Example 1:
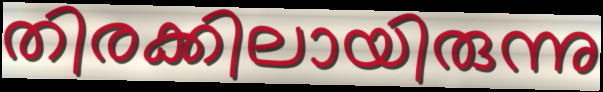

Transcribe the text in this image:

തിരക്കിലായിരുന്നു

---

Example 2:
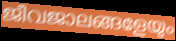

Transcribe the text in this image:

ജീവജാലങ്ങളേയും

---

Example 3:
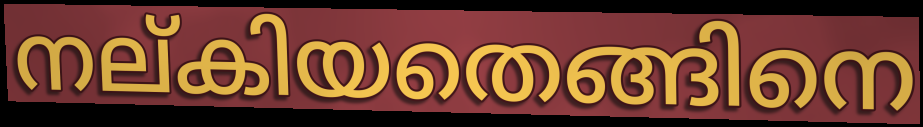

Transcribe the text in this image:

നല്കിയതെങ്ങിനെ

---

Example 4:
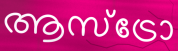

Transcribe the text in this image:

ആസ്ട്രോ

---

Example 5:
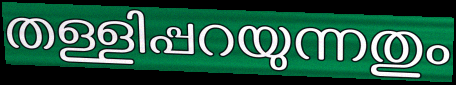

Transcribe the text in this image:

തള്ളിപ്പറയുന്നതും